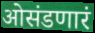
ओसंडणारं